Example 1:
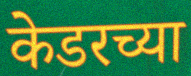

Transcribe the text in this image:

केडरच्या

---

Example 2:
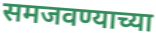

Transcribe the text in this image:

समजवण्याच्या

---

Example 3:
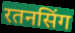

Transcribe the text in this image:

रतनसिंग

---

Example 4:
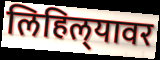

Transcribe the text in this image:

लिहिल्यावर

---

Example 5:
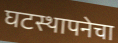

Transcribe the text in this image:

घटस्थापनेचा